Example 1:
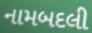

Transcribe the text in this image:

નામબદલી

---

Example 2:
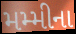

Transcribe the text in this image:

મમ્મીના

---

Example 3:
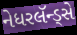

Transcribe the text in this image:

નેધરલૅન્ડ્સે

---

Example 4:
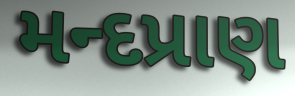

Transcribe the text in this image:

મન્દપ્રાણ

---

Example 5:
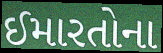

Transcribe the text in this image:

ઈમારતોના